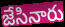
జేసినారు